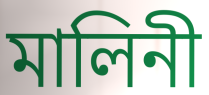
মালিনী